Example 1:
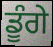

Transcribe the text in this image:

ਡੂੰਗੇ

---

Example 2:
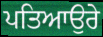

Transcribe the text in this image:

ਪਤਿਆਉਰੇ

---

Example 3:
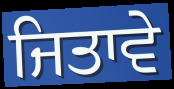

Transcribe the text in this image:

ਜਿਤਾਵੇ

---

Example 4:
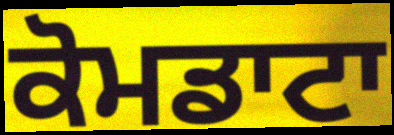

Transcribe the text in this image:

ਕੋਮਡਾਟਾ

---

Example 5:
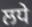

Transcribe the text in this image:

ਲਧੇ